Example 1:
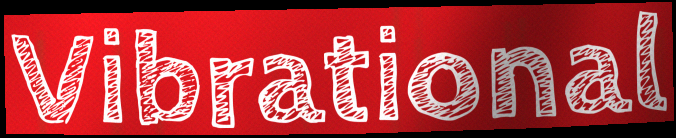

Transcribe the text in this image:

Vibrational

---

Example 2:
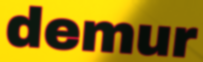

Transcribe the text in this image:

demur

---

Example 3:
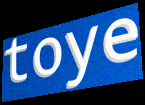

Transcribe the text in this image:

toye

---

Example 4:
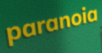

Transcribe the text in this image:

paranoia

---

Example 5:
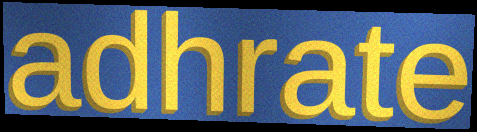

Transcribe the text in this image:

adhrate